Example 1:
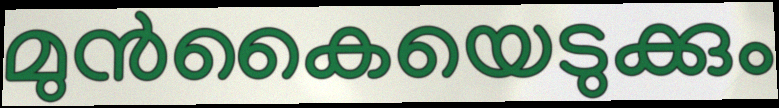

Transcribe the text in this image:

മുൻകൈയെടുക്കും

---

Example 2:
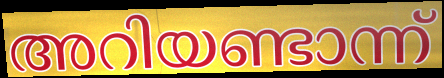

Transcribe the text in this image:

അറിയണ്ടാന്ന്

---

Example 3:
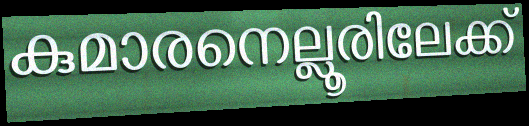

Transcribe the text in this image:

കുമാരനെല്ലൂരിലേക്ക്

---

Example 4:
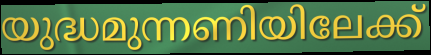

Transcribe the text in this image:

യുദ്ധമുന്നണിയിലേക്ക്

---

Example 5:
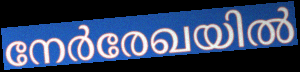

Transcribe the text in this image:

നേർരേഖയിൽ